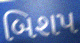
બિશપ